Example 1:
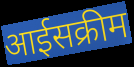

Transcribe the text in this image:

आईसक्रीम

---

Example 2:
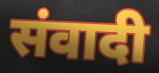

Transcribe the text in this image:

संवादी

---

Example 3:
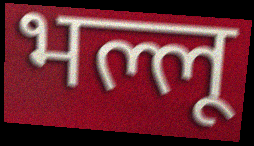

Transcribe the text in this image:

भल्लू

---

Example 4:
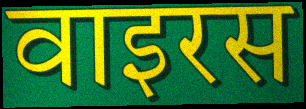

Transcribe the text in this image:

वाइरस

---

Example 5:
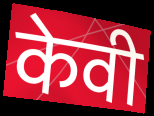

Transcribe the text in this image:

केवी